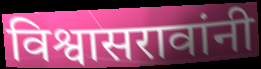
विश्वासरावांनी